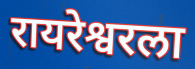
रायरेश्वरला